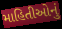
માહિતીઓનું